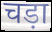
चड़ा